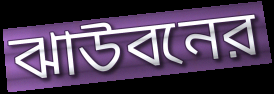
ঝাউবনের